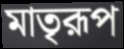
মাতৃরূপ